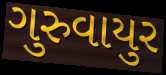
ગુરુવાયુર